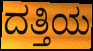
ದತ್ತಿಯ